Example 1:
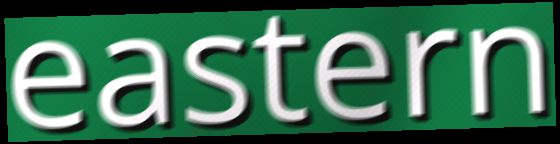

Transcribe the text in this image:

eastern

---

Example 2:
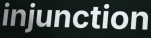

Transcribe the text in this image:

injunction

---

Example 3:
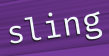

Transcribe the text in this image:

sling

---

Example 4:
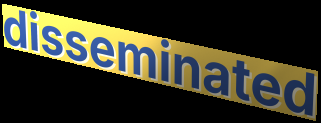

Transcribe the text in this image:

disseminated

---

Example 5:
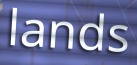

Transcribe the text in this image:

lands